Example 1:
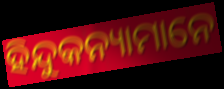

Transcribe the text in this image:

ହିନ୍ଦୁକନ୍ୟାମାନେ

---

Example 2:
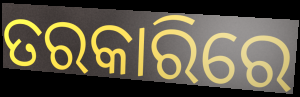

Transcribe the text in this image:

ତରକାରିରେ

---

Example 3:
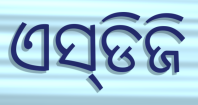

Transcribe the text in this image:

ଏସ୍‌ଡିଜି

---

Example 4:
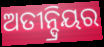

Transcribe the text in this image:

ଅତୀନ୍ଦ୍ରିୟର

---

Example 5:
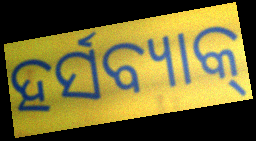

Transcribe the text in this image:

ହର୍ସବ୍ୟାକ୍